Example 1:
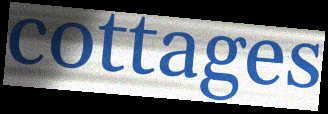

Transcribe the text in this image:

cottages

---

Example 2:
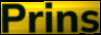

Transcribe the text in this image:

Prins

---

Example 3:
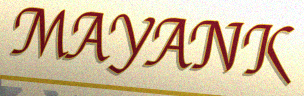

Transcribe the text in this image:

MAYANK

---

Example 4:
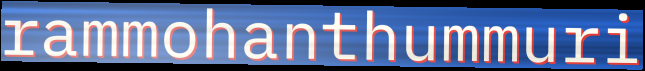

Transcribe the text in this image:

rammohanthummuri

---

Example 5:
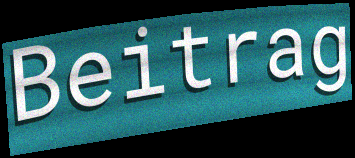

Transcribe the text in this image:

Beitrag